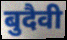
बुदैवी